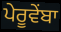
ਪੇਰੂਵੇਂਬਾ